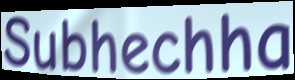
Subhechha